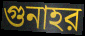
গুনাহর